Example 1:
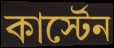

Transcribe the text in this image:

কার্স্টেন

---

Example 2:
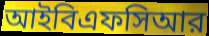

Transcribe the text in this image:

আইবিএফসিআর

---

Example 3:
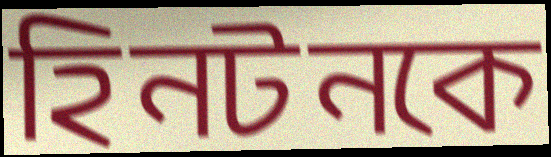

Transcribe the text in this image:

হিনটনকে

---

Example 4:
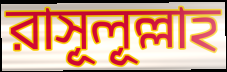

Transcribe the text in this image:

রাসূলূল্লাহ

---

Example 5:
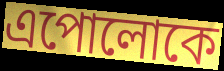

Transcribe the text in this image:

এপোলোকে